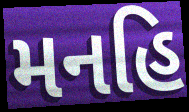
મનહિ